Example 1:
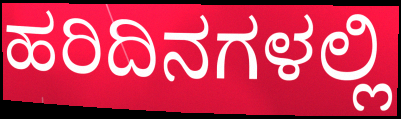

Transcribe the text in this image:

ಹರಿದಿನಗಳಲ್ಲಿ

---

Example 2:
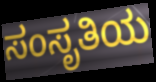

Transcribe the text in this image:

ಸಂಸೃತಿಯ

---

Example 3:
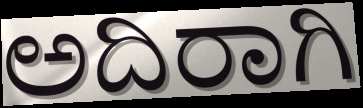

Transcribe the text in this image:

ಅದಿರಾಗಿ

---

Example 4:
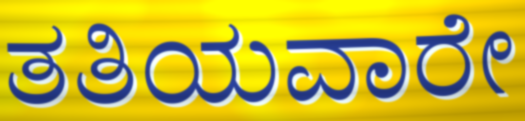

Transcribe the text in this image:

ತತಿಯವಾರೇ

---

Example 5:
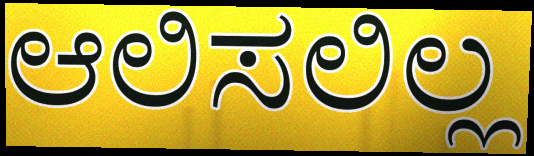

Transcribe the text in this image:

ಆಲಿಸಲಿಲ್ಲ